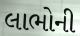
લાભોની